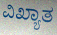
ವಿಖ್ಯಾತ